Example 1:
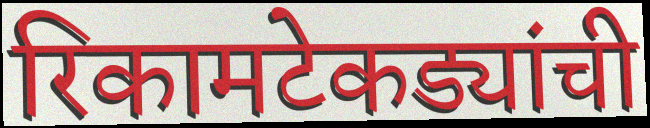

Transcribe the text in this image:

रिकामटेकड्यांची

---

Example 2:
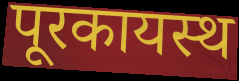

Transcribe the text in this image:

पूरकायस्थ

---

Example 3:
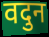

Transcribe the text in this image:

वदुन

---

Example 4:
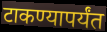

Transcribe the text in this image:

टाकण्यापर्यंत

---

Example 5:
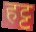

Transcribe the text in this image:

हट्ट